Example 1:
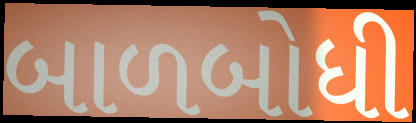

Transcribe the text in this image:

બાળબોધી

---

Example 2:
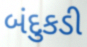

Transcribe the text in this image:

બંદુકડી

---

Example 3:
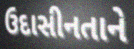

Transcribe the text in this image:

ઉદાસીનતાને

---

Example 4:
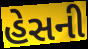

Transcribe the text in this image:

હેસની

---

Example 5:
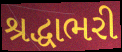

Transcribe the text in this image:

શ્રદ્ધાભરી